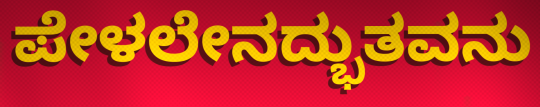
ಪೇಳಲೇನದ್ಭುತವನು